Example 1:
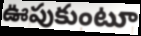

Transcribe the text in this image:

ఊపుకుంటూ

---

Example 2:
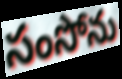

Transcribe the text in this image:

సంసోను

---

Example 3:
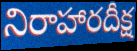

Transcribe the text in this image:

నిరాహారదీక్ష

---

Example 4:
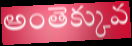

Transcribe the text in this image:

అంతెక్కువ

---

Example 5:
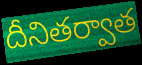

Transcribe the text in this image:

దీనితర్వాత